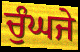
ਚੁੰਘਜੇ